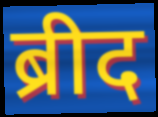
ब्रीद